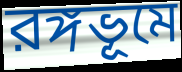
রঙ্গভূমে